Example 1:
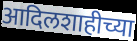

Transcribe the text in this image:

आदिलशाहीच्या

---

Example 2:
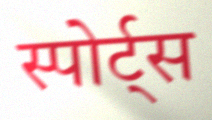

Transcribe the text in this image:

स्पोर्ट्स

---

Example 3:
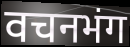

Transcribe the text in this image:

वचनभंग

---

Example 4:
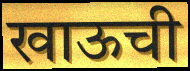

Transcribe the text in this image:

खाऊची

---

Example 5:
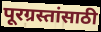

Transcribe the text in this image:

पूरग्रस्तांसाठी